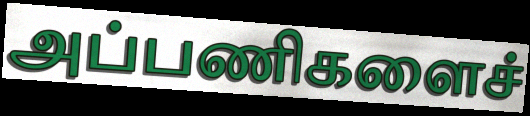
அப்பணிகளைச்